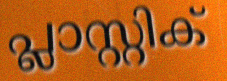
പ്ലാസ്റ്റിക്